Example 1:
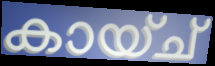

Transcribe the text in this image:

കായ്ച്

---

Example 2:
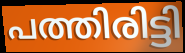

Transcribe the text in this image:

പത്തിരിട്ടി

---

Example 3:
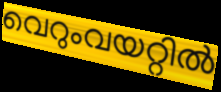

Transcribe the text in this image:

വെറുംവയറ്റിൽ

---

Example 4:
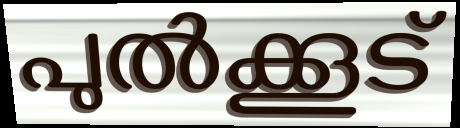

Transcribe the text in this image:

പുൽക്കൂട്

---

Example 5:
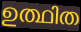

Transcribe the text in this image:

ഉത്ഥിത